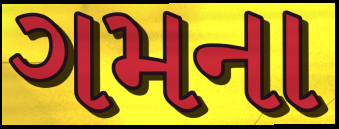
ગમના